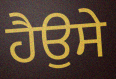
ਹੈਉਸੇ